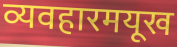
व्यवहारमयूख